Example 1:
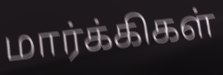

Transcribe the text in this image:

மார்க்கிகள்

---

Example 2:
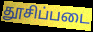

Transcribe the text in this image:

தூசிப்படை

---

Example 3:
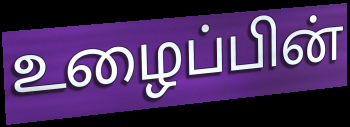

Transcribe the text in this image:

உழைப்பின்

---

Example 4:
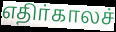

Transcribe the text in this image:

எதிர்காலச்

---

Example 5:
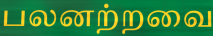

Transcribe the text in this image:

பலனற்றவை